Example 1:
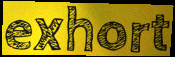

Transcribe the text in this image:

exhort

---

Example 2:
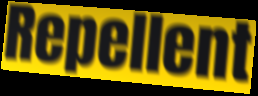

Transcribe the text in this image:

Repellent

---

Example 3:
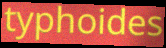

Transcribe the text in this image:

typhoides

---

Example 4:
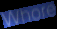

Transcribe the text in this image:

Whore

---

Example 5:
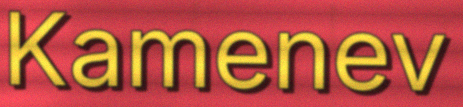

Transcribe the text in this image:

Kamenev